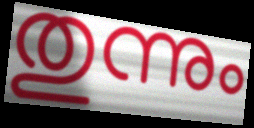
തുന്നും